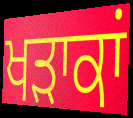
ਖੜਾਕਾਂ